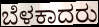
ಬೆಳಕಾದರು